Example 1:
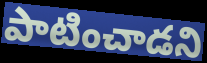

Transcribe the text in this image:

పాటించాడని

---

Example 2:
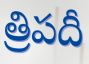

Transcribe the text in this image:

త్రిపదీ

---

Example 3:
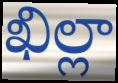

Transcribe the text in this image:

ఖిల్లా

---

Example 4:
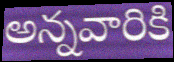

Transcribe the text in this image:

అన్నవారికి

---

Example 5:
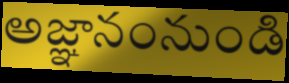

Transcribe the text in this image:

అజ్ఞానంనుండి